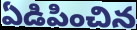
ఏడిపించిన